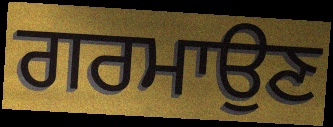
ਗਰਮਾਉਣ